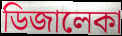
ডিজালেকা